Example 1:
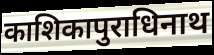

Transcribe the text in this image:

काशिकापुराधिनाथ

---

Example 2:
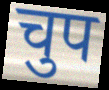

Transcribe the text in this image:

चुप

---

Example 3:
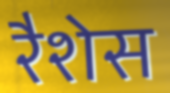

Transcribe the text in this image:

रैशेस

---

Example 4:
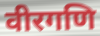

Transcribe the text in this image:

वीरगणि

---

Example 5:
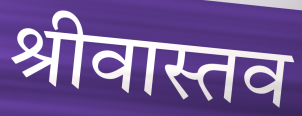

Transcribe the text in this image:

श्रीवास्तव